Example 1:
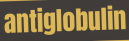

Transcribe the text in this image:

antiglobulin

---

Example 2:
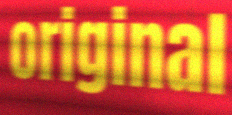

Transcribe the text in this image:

original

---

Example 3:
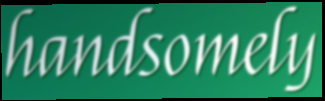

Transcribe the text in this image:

handsomely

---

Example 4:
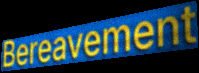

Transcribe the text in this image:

Bereavement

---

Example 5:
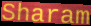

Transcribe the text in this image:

Sharam